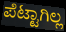
ಪೆಟ್ಟಾಗಿಲ್ಲ